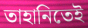
তাহানিতেই